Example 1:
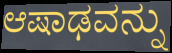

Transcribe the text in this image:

ಆಷಾಢವನ್ನು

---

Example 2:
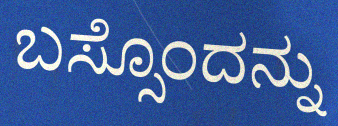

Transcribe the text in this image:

ಬಸ್ಸೊಂದನ್ನು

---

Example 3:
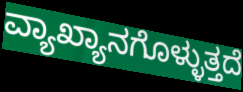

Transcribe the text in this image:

ವ್ಯಾಖ್ಯಾನಗೊಳ್ಳುತ್ತದೆ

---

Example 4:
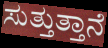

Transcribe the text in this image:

ಸುತ್ತುತ್ತಾನೆ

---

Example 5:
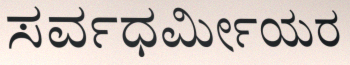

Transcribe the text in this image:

ಸರ್ವಧರ್ಮೀಯರ